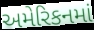
અમેરિકનમાં